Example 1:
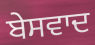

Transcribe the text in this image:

ਬੇਸਵਾਦ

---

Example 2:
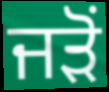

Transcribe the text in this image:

ਜੜੋਂ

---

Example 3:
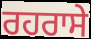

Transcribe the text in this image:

ਰਹਰਾਸੇ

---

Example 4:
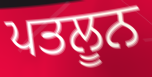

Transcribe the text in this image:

ਪਤਲੂਨ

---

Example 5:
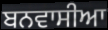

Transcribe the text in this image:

ਬਨਵਾਸੀਆ